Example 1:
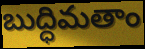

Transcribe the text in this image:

బుద్ధిమతాం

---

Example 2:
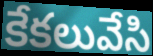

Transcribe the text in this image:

కేకలువేసి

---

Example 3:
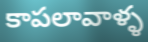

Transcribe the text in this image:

కాపలావాళ్ళ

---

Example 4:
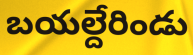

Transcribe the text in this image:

బయల్దేరిండు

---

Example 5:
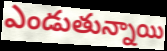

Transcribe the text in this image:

ఎండుతున్నాయి